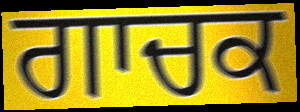
ਗਾਚਕ